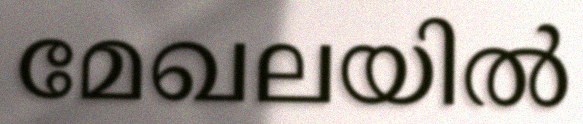
മേഖലയിൽ